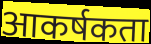
आकर्षकता